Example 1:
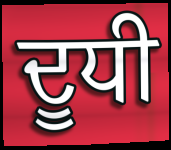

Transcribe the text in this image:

ਦੂਧੀ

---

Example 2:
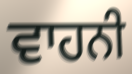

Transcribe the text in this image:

ਵਾਹਨੀ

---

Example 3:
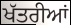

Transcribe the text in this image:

ਖੱਤਰੀਆਂ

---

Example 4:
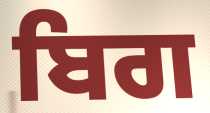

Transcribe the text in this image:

ਬਿਗ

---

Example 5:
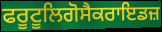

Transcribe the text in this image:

ਫਰੂਟੂਲਿਗੋਸੈਕਰਾਇਡਜ਼